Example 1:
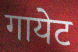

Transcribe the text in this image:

गायेट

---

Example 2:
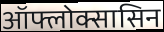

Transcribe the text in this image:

ऑफ्लोक्सासिन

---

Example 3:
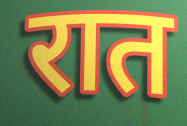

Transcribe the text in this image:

रात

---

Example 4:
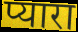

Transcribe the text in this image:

प्यारा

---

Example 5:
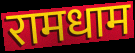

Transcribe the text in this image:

रामधाम